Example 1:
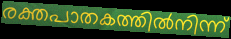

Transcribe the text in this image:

രക്തപാതകത്തിൽനിന്ന്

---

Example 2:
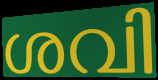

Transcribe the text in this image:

ശവി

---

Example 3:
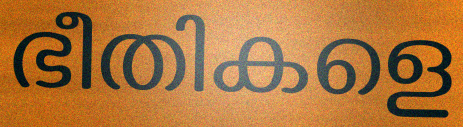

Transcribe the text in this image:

ഭീതികളെ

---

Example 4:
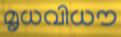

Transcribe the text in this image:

മൃധവിധൗ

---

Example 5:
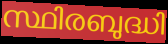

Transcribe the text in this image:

സ്ഥിരബുദ്ധി